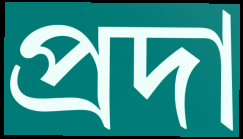
প্রদা